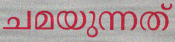
ചമയുന്നത്